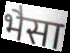
भैसा